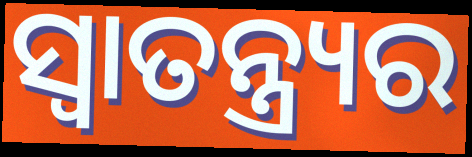
ସ୍ୱାତନ୍ତ୍ର୍ୟର